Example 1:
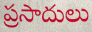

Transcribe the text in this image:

ప్రసాదులు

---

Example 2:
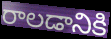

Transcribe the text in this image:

రాలడానికి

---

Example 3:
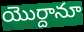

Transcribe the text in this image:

యొర్దానూ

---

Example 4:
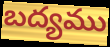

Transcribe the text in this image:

బద్యము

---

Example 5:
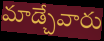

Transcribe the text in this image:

మాడ్చేవారు